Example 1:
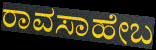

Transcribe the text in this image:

ರಾವಸಾಹೇಬ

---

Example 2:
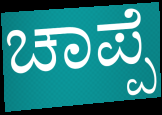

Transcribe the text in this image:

ಚಾಪ್ಪೆ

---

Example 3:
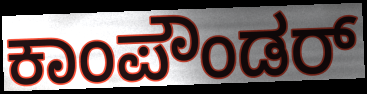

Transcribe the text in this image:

ಕಾಂಪೌಂಡರ್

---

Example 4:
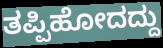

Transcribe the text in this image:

ತಪ್ಪಿಹೋದದ್ದು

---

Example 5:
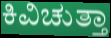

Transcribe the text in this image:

ಕಿವಿಚುತ್ತಾ